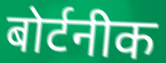
बोर्टनीक